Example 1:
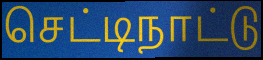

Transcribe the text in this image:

செட்டிநாட்டு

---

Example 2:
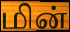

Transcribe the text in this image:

மின்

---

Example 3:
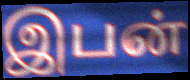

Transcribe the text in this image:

இபன்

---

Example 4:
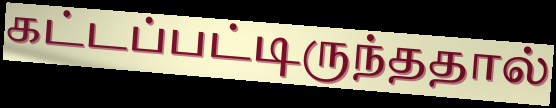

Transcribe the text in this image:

கட்டப்பட்டிருந்ததால்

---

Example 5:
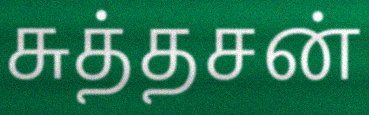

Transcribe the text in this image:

சுத்தசன்